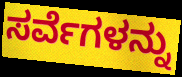
ಸರ್ವೆಗಳನ್ನು